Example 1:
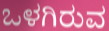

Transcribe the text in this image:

ಒಳಗಿರುವ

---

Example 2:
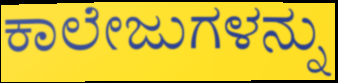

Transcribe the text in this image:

ಕಾಲೇಜುಗಳನ್ನು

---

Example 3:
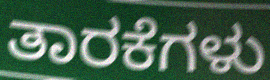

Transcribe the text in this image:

ತಾರಕೆಗಳು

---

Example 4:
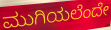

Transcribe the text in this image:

ಮುಗಿಯಲೆಂದೇ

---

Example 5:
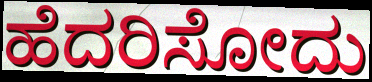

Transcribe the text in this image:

ಹೆದರಿಸೋದು